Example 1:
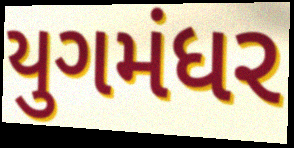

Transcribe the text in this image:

યુગમંધર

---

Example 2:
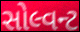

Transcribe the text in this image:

સોલ્વન્ટ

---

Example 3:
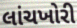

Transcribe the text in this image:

લાંચખોરી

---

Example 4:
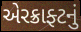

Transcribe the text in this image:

એરક્રાફ્ટનું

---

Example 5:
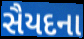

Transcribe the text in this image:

સૈયદના